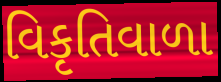
વિકૃતિવાળા